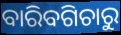
ବାରିବଗିଚାରୁ